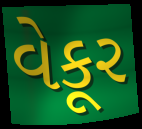
વેકૂર